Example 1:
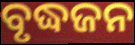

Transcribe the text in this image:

ବୃଦ୍ଧଜନ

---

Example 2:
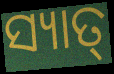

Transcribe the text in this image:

ସ୍ୟାତ୍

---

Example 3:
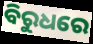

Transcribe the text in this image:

ବିରୁଧରେ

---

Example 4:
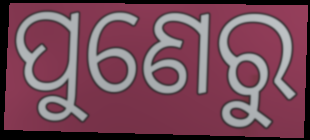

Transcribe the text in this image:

ପୁଣେରୁ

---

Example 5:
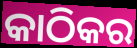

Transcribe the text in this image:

କାଠିକର